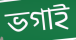
ভগাই